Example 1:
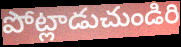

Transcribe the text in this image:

పోట్లాడుచుండిరి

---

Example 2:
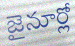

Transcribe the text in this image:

జైనూర్లో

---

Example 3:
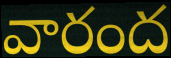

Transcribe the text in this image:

వారంద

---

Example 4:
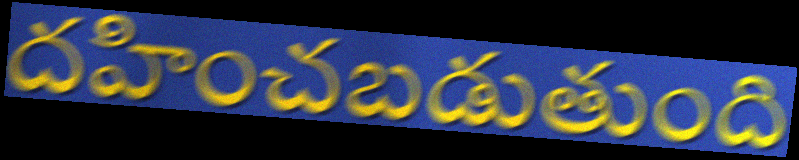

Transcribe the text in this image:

దహించబడుతుంది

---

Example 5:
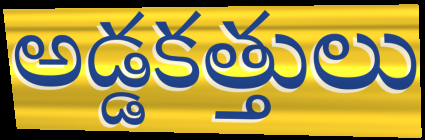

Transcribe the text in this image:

అడ్డకత్తులు